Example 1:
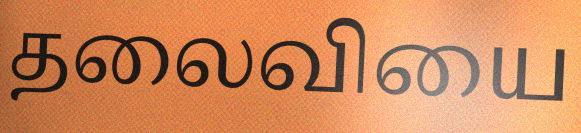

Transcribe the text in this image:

தலைவியை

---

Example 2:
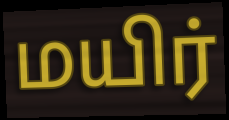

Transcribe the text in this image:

மயிர்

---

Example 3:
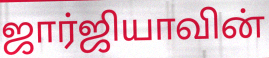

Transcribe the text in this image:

ஜார்ஜியாவின்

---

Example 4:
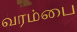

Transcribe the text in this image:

வரம்பை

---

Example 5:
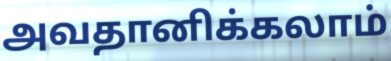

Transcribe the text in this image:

அவதானிக்கலாம்